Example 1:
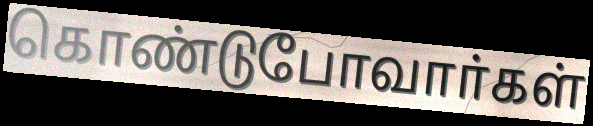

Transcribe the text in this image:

கொண்டுபோவார்கள்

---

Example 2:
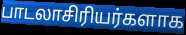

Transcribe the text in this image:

பாடலாசிரியர்களாக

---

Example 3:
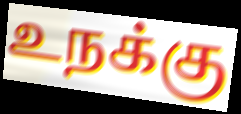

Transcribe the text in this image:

உநக்கு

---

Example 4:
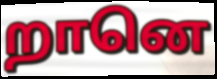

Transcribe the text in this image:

றானெ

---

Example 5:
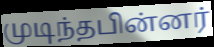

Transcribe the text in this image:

முடிந்தபின்னர்